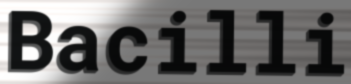
Bacilli